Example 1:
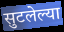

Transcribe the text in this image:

सुटलेल्या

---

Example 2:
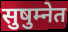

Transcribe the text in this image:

सुषुम्नेत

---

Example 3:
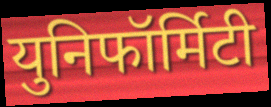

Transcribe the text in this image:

युनिफॉर्मिटी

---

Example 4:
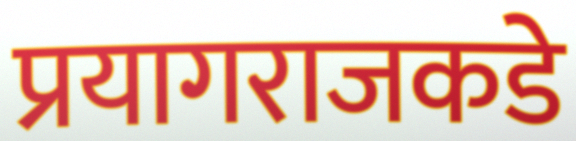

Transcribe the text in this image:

प्रयागराजकडे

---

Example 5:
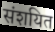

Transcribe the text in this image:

संशयित